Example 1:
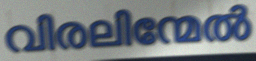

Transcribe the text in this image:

വിരലിന്മേൽ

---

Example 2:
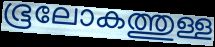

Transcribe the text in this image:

ഭൂലോകത്തുള്ള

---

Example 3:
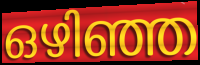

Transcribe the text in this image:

ഒഴിഞ്ഞ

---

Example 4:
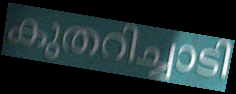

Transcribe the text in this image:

കുതറിച്ചാടി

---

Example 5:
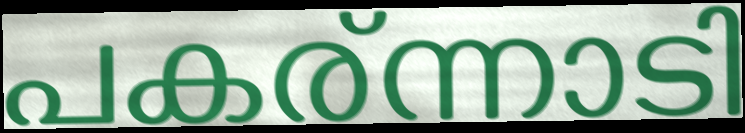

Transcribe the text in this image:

പകര്ന്നാടി